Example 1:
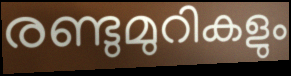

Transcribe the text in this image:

രണ്ടുമുറികളും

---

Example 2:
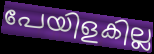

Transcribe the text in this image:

പേയിളകില്ല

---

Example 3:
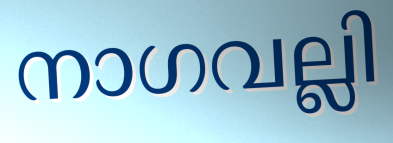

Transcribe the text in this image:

നാഗവല്ലി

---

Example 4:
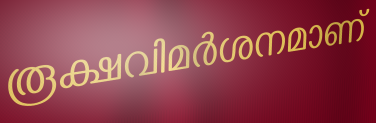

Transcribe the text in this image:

രൂക്ഷവിമർശനമാണ്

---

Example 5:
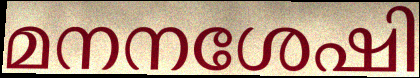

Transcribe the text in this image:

മനനശേഷി